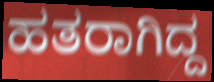
ಹತರಾಗಿದ್ದ